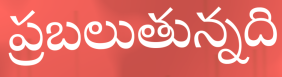
ప్రబలుతున్నది